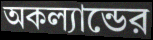
অকল্যান্ডের